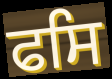
ਫਸਿ